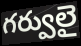
గర్వులై